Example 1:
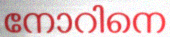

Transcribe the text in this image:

നോറിനെ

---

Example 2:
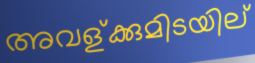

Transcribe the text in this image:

അവള്ക്കുമിടയില്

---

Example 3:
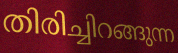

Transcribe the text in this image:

തിരിച്ചിറങ്ങുന്ന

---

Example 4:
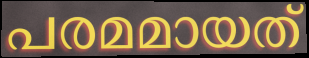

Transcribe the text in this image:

പരമമായത്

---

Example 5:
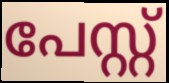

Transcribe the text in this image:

പേസ്റ്റ്